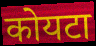
कोयटा